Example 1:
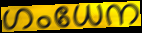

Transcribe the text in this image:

ഗംധേന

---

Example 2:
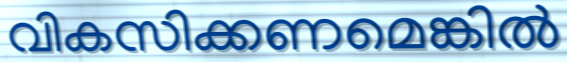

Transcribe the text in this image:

വികസിക്കണമെങ്കിൽ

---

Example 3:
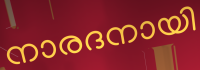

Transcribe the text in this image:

നാരദനായി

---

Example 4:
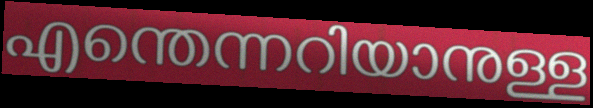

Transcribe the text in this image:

എന്തെന്നറിയാനുള്ള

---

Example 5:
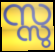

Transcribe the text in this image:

സ്സു